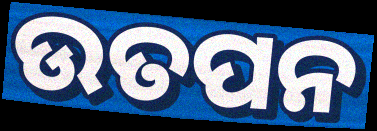
ଉତପନ